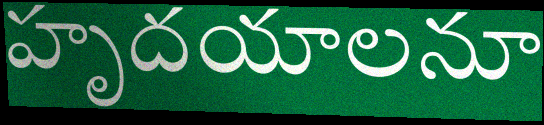
హృదయాలనూ